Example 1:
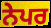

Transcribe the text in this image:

ਨੇਪਰ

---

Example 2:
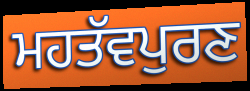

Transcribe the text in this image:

ਮਹਤੱਵਪੁਰਣ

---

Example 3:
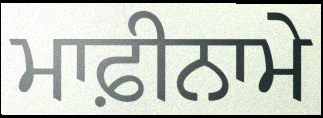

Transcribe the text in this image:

ਮਾਫ਼ੀਨਾਮੇ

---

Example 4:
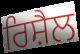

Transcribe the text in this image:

ਰਿਸ਼ੈਲ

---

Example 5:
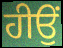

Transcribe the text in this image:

ਹੀਉਂ